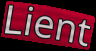
Lient